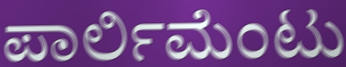
ಪಾರ್ಲಿಮೆಂಟು